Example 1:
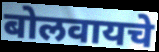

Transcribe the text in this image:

बोलवायचे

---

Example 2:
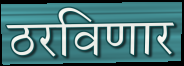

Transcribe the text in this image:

ठरविणार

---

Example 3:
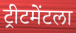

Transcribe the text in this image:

ट्रीटमेंटला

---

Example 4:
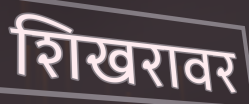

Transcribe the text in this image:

शिखरावर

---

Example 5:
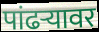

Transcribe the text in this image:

पांढर्‍यावर